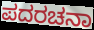
ಪದರಚನಾ